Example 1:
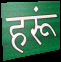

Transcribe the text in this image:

हरूं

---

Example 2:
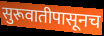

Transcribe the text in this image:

सुरूवातीपासूनच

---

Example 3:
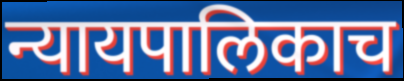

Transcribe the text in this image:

न्यायपालिकाच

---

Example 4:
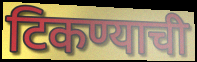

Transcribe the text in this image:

टिकण्याची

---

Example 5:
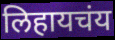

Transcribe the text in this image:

लिहायचंय